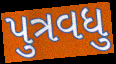
પુત્રવધુ